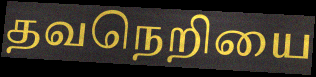
தவநெறியை